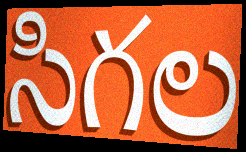
సిగల